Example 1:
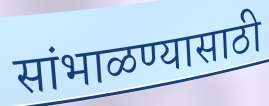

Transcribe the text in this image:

सांभाळण्यासाठी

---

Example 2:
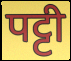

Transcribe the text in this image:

पट्टी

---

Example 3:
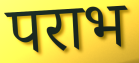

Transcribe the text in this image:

पराभ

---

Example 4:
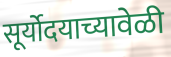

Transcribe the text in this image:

सूर्योदयाच्यावेळी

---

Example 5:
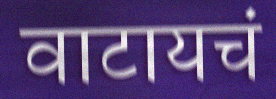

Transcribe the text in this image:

वाटायचं